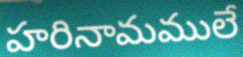
హరినామములే